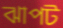
ঝাপট